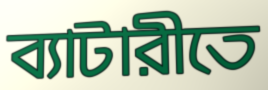
ব্যাটারীতে